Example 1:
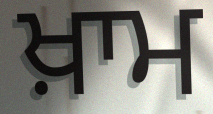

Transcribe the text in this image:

ਖ਼ਾਮ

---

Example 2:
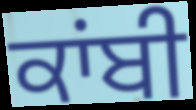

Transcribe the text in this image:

ਕਾਂਬੀ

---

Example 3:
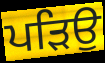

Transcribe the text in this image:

ਪੜਿਉ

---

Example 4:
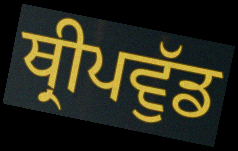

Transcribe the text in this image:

ਥ੍ਰੀਪਵੁੱਡ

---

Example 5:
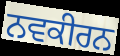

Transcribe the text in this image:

ਨਵਕੀਰਨ